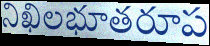
నిఖిలభూతరూప